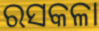
ରସକଳା